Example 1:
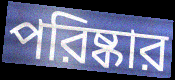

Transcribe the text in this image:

পরিষ্কার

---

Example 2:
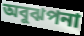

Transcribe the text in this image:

অবুঝপনা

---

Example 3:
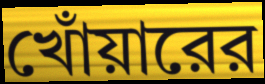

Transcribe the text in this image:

খোঁয়ারের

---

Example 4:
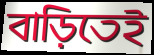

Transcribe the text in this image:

বাড়িতেই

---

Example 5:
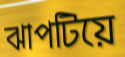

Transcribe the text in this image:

ঝাপটিয়ে